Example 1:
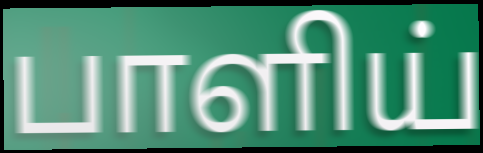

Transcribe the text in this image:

பாளிய்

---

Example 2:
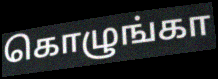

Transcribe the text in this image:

கொழுங்கா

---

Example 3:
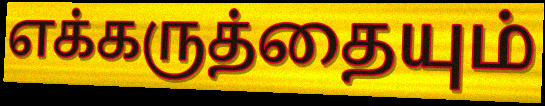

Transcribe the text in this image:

எக்கருத்தையும்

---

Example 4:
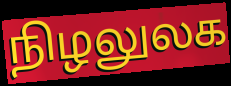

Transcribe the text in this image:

நிழலுலக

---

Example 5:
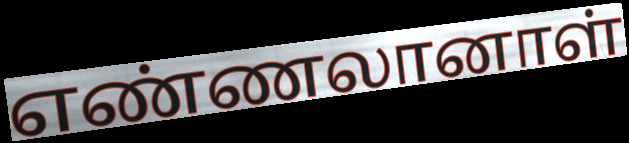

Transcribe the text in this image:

எண்ணலானாள்